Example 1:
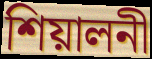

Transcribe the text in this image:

শিয়ালনী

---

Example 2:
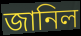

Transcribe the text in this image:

জানিল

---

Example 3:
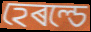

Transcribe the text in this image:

হেৰল্ডে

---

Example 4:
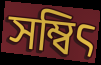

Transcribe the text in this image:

সম্বিৎ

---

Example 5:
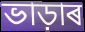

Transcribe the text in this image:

ভাড়াৰ